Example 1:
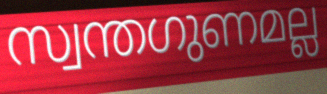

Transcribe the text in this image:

സ്വന്തഗുണമല്ല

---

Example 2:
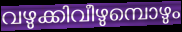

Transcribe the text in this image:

വഴുക്കിവീഴുമ്പൊഴും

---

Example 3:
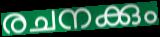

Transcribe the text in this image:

രചനക്കും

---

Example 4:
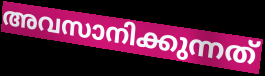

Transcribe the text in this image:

അവസാനിക്കുന്നത്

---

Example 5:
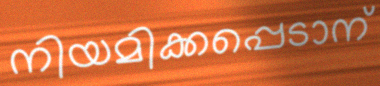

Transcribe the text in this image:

നിയമിക്കപ്പെടാന്